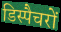
डिस्पैचरों